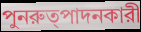
পুনরুত্পাদনকারী